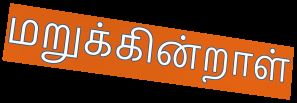
மறுக்கின்றாள்